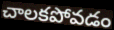
చాలకపోవడం